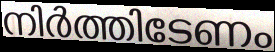
നിർത്തിടേണം